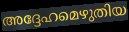
അദ്ദേഹമെഴുതിയ